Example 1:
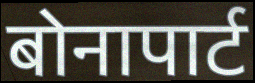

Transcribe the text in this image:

बोनापार्ट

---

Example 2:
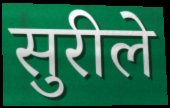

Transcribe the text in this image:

सुरीले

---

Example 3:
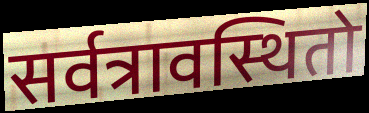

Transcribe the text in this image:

सर्वत्रावस्थितो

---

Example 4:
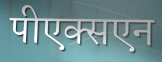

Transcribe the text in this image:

पीएक्सएन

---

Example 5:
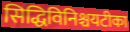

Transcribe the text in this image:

सिद्धिविनिश्चयटीका